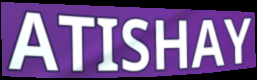
ATISHAY